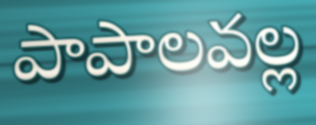
పాపాలవల్ల